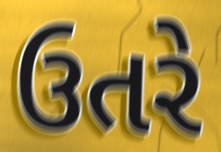
ઉતરે